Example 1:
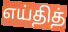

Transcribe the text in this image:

எய்தித்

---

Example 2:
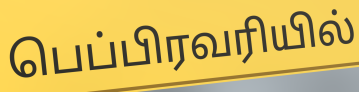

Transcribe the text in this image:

பெப்பிரவரியில்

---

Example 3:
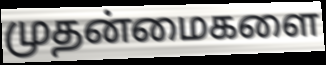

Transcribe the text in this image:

முதன்மைகளை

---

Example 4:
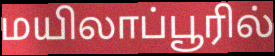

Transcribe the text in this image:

மயிலாப்பூரில்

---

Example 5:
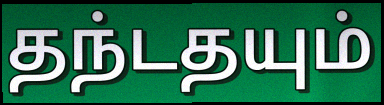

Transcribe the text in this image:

தந்டதயும்